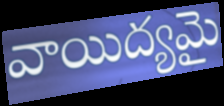
వాయిద్యమై